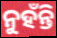
ନୁହଁନ୍ତି